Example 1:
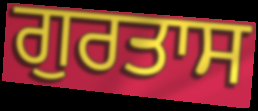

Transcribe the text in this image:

ਗੁਰਤਾਸ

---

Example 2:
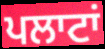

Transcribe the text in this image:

ਪਲਾਟਾਂ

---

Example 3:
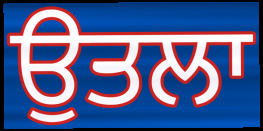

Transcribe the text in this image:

ਉਤਲਾ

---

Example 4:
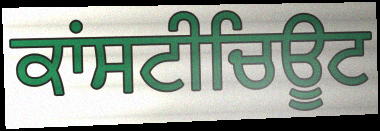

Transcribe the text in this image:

ਕਾਂਸਟੀਚਿਊਟ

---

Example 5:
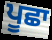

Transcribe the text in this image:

ਪੂਛਾ